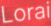
Lorai